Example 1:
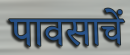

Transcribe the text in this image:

पावसाचें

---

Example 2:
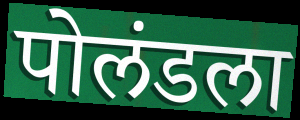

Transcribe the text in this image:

पोलंडला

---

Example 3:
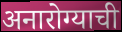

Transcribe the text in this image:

अनारोग्याची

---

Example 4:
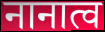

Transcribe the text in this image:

नानात्व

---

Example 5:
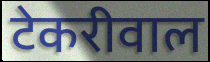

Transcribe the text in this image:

टेकरीवाल